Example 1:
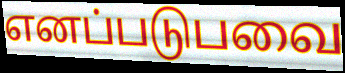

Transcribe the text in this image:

எனப்படுபவை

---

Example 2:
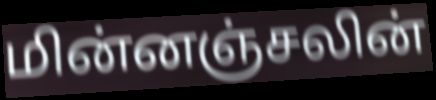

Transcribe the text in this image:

மின்னஞ்சலின்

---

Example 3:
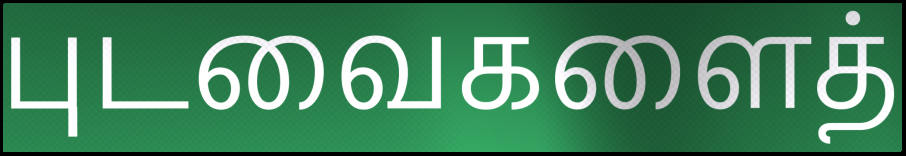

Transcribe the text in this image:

புடவைகளைத்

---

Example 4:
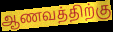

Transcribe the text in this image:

ஆணவத்திற்கு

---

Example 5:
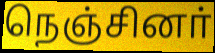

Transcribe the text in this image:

நெஞ்சினர்